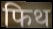
फिथ